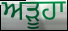
ਅੜੂਹਾ